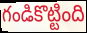
గండికొట్టింది